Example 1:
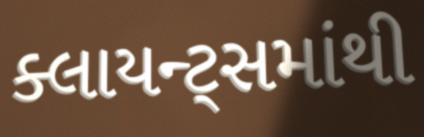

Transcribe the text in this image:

ક્લાયન્ટ્સમાંથી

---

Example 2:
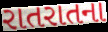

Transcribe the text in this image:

રાતરાતના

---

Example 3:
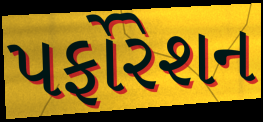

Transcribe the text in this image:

પર્ફોરેશન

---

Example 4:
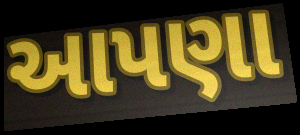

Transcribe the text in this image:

આપણા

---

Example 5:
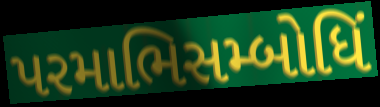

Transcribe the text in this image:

પરમાભિસમ્બોધિં